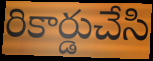
రికార్డుచేసి